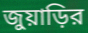
জুয়াড়ির